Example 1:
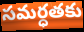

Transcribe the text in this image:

సమర్ధతకు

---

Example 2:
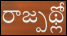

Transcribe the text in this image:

రాజ్పథ్లో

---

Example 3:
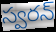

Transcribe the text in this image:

స్వరన్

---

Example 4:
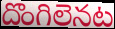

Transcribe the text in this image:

దొంగిలెనట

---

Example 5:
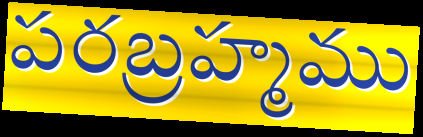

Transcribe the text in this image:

పరబ్రహ్మము